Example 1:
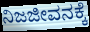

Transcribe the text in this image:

ನಿಜಜೀವನಕ್ಕೆ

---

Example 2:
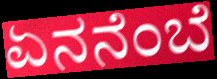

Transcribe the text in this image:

ಏನನೆಂಬೆ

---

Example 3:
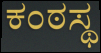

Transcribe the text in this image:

ಕಂಠಸ್ಥ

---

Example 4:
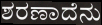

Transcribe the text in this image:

ಶರಣಾದೆನು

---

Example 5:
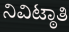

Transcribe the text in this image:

ನಿವಿಟ್ಠಾತಿ